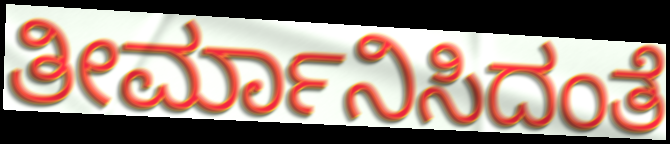
ತೀರ್ಮಾನಿಸಿದಂತೆ